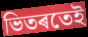
ভিতৰতেই